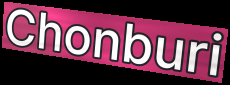
Chonburi